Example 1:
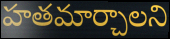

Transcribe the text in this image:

హతమార్చాలని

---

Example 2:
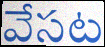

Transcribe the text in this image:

వేసట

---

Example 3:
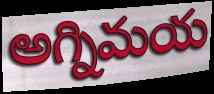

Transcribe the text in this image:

అగ్నిమయ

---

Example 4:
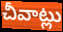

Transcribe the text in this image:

చీవాట్లు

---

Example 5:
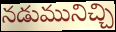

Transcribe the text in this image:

నడుమునిచ్చి